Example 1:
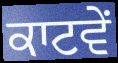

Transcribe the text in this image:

ਕਾਟਵੇਂ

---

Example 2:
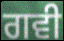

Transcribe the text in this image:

ਗਵੀ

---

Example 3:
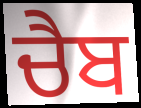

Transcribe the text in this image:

ਚੈਬ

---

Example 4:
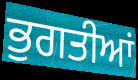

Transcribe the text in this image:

ਭੁਗਤੀਆਂ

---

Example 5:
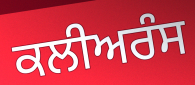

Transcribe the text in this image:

ਕਲੀਅਰੰਸ